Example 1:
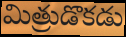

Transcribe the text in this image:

మిత్రుడొకడు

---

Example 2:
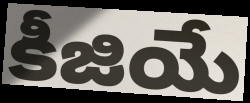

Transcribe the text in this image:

కీజియే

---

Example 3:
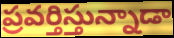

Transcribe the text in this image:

ప్రవర్తిస్తున్నాడా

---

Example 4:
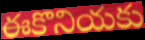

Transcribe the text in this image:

ఈకొనియకు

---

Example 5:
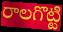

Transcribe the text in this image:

రాలగొట్టి